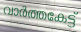
വാർത്തകേട്ട്